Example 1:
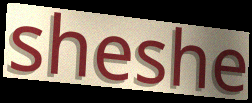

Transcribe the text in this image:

sheshe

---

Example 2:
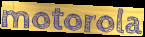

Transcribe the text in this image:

motorola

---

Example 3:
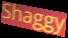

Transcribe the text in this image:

Shaggy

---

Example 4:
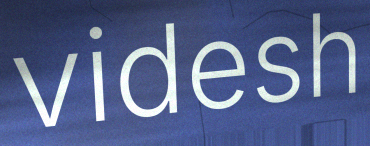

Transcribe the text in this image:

videsh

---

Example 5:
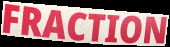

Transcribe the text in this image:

FRACTION